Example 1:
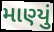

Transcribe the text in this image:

માણ્યું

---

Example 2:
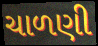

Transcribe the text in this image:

ચાળણી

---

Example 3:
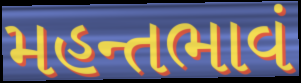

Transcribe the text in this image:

મહન્તભાવં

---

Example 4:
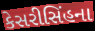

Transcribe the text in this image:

કેસરીસિંહના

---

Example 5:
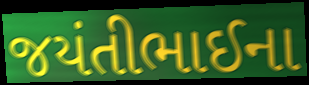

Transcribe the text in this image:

જયંતીભાઈના